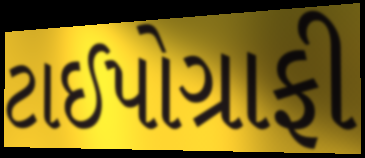
ટાઈપોગ્રાફી